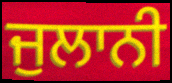
ਜੁਲਾਨੀ